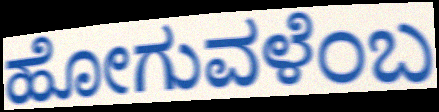
ಹೋಗುವಳೆಂಬ